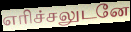
எரிச்சலுடனே